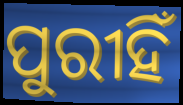
ପୁରୀହିଁ